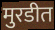
मुरडीत